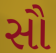
સૌ